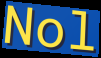
Nol